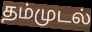
தம்முடல்